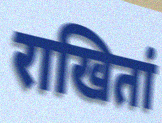
राखितां